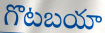
గొటబయా